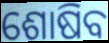
ଶୋଷିବ